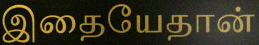
இதையேதான்